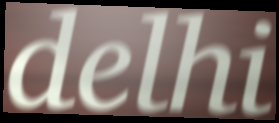
delhi